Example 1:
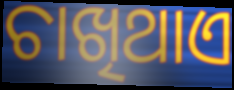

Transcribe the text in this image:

ଚାଖିଥାଏ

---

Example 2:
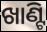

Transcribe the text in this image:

ଖାଣ୍ଟି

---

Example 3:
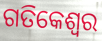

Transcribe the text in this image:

ଗତିକେଶ୍ବର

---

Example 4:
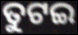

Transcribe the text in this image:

ତୁଟଇ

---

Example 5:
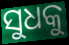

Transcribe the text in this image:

ସୁଧକୁ